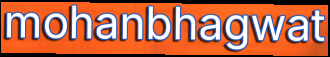
mohanbhagwat